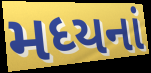
મધ્યનાં